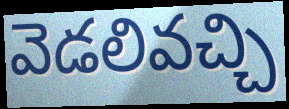
వెడలివచ్చి